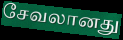
சேவலானது